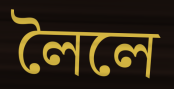
লৈলে